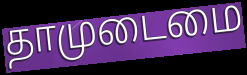
தாமுடைமை